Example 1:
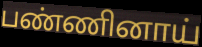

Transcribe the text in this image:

பண்ணினாய்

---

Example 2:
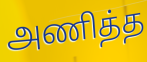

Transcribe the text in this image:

அணித்த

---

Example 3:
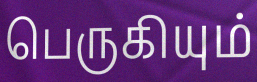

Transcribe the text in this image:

பெருகியும்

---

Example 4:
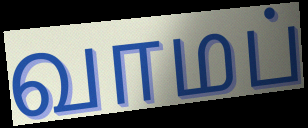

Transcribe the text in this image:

வாமப்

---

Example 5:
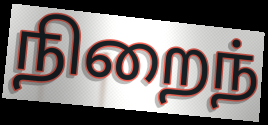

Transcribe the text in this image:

நிறைந்